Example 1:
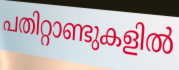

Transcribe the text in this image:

പതിറ്റാണ്ടുകളിൽ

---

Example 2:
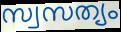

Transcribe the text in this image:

സ്വസത്യം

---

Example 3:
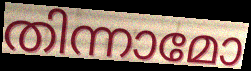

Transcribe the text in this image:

തിന്നാമോ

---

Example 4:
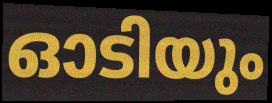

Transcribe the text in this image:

ഓടിയും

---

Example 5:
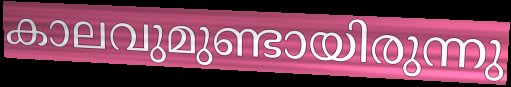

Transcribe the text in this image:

കാലവുമുണ്ടായിരുന്നു